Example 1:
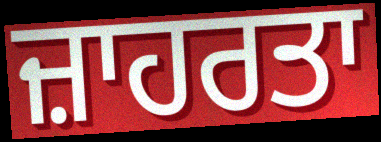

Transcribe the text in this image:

ਜ਼ਾਹਰਤਾ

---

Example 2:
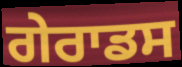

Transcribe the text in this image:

ਗੇਰਾਡਸ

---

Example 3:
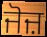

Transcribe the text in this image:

ਜੋਜ਼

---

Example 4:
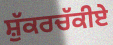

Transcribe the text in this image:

ਸ਼ੁੱਕਰਚੱਕੀਏ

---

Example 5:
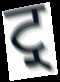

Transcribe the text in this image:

ਟ੍ਰ